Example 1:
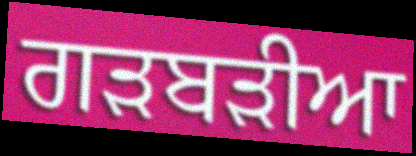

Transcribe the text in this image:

ਗੜਬੜੀਆ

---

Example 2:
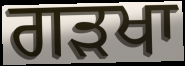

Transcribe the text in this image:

ਗੜਖਾ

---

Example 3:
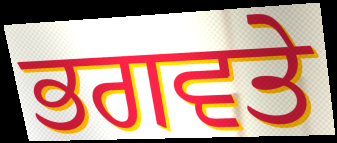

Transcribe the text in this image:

ਭਗਵਤੇ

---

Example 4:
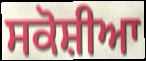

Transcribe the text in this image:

ਸਕੋਸ਼ੀਆ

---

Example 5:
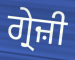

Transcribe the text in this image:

ਗ੍ਰੇਜ਼ੀ